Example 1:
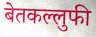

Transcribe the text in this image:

बेतकल्लुफी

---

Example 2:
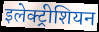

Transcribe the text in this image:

इलेक्ट्रीशियन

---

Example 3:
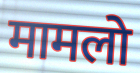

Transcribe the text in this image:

मामलो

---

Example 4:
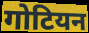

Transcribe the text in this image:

गोटियन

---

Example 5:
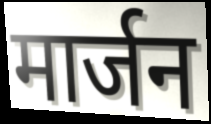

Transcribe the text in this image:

मार्जन